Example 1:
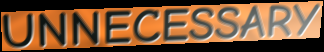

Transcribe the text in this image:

UNNECESSARY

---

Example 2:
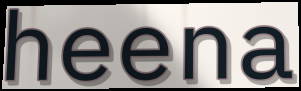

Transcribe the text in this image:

heena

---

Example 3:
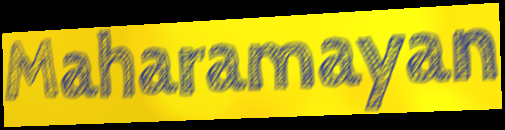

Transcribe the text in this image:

Maharamayan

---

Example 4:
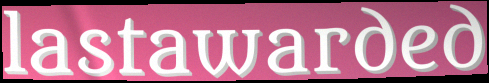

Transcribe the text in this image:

lastawarded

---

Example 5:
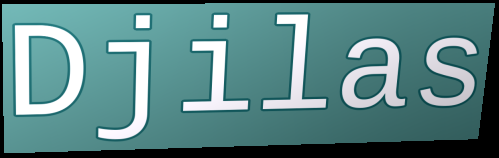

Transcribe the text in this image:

Djilas